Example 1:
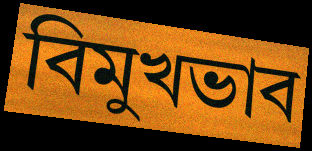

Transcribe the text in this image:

বিমুখভাব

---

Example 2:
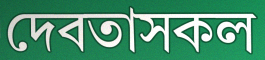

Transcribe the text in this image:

দেবতাসকল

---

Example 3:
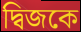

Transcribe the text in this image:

দ্বিজকে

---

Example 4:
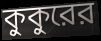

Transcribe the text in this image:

কুকুরের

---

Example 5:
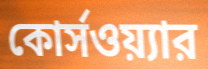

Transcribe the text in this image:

কোর্সওয়্যার